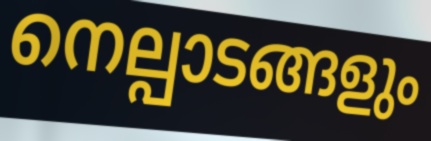
നെല്പാടങ്ങളും